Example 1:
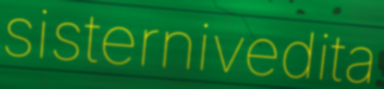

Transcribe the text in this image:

sisternivedita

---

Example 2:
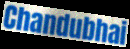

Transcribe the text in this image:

Chandubhai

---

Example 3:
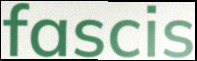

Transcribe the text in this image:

fascis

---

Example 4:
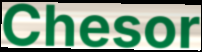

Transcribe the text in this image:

Chesor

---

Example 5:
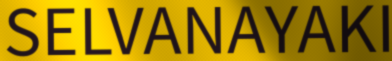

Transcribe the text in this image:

SELVANAYAKI